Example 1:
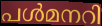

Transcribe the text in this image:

പൾമനറി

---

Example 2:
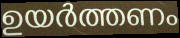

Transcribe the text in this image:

ഉയർത്തണം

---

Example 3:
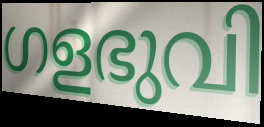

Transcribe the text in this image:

ഗളഭുവി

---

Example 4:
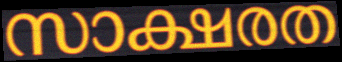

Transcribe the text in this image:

സാക്ഷരത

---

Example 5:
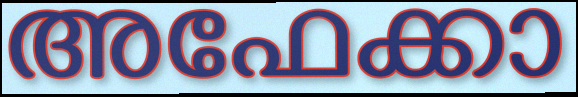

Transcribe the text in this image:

അഫേക്കാ